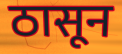
ठासून